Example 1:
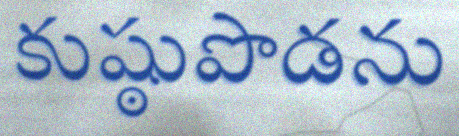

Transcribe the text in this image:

కుష్ఠుపొడను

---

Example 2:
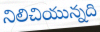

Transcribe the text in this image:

నిలిచియున్నది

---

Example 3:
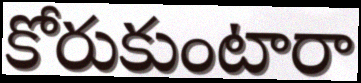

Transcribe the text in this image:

కోరుకుంటారా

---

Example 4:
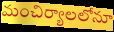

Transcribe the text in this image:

మంచిర్యాలలోనూ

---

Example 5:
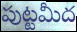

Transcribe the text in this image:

పుట్టమీద